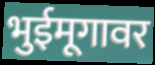
भुईमूगावर